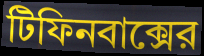
টিফিনবাক্সের